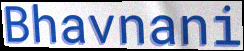
Bhavnani